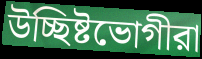
উচ্ছিষ্টভোগীরা